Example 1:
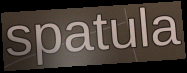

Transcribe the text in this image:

spatula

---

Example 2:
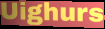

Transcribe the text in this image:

Uighurs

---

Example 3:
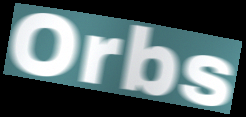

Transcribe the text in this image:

Orbs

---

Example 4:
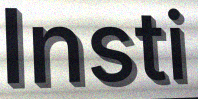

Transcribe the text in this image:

Insti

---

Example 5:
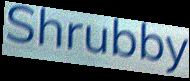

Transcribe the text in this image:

Shrubby